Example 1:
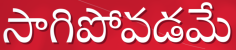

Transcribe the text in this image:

సాగిపోవడమే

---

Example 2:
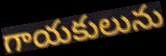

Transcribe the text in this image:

గాయకులును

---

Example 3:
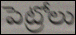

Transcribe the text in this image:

పెట్రోలు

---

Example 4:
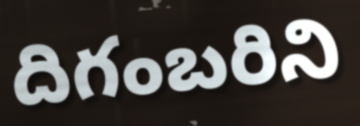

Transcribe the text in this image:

దిగంబరిని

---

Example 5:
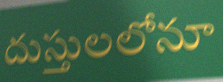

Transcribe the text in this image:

దుస్తులలోనూ